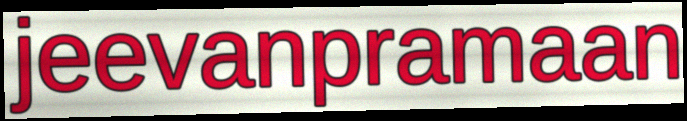
jeevanpramaan